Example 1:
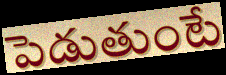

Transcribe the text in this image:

పెడుతుంటే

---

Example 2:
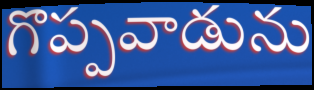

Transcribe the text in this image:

గొప్పవాడును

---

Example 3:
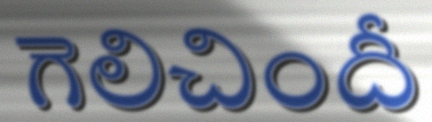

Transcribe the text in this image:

గెలిచిందీ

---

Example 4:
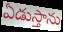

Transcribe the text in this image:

ఏడుస్తాను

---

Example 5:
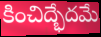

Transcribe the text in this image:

కించిద్భేదమే